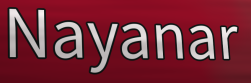
Nayanar